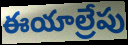
ఈయాల్రేపు